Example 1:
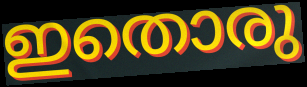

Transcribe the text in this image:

ഇതൊരു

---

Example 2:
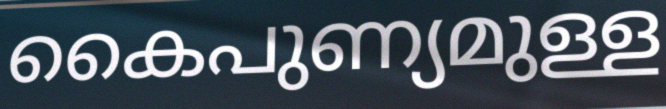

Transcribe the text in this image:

കൈപുണ്യമുള്ള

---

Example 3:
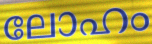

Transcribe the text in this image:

ലോഹം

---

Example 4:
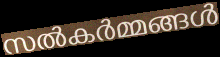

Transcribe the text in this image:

സൽകർമ്മങ്ങൾ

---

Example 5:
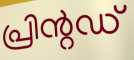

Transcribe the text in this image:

പ്രിന്റഡ്